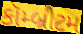
કૉમ્બ્રીટમ